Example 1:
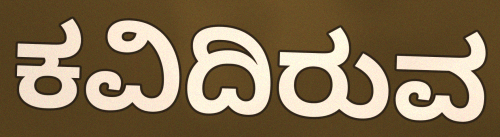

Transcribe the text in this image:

ಕವಿದಿರುವ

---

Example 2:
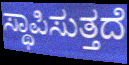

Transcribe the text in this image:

ಸ್ಥಾಪಿಸುತ್ತದೆ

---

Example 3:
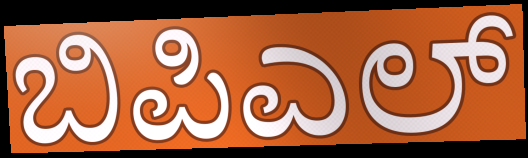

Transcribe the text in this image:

ಬಿಪಿಎಲ್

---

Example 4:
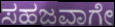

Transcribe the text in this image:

ಸಹಜವಾಗೇ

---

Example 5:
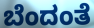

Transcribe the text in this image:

ಬೆಂದಂತೆ